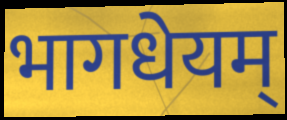
भागधेयम्